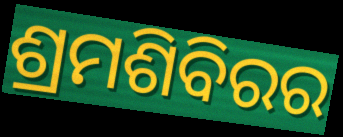
ଶ୍ରମଶିବିରର